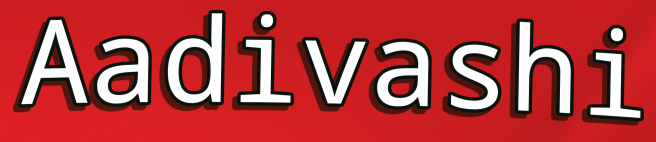
Aadivashi